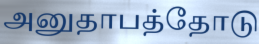
அனுதாபத்தோடு